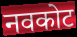
नवकोट